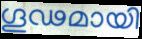
ഗൂഢമായി